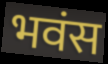
भवंस